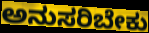
ಅನುಸರಿಬೇಕು